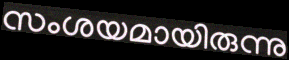
സംശയമായിരുന്നു